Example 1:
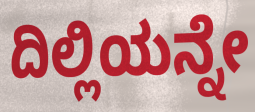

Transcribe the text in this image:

ದಿಲ್ಲಿಯನ್ನೇ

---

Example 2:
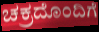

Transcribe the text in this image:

ಚಕ್ರದೊಂದಿಗೆ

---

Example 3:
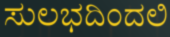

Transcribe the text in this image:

ಸುಲಭದಿಂದಲಿ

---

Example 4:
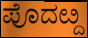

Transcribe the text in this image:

ಪೊದೞ್ದ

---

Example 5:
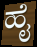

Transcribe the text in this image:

ಹೈ